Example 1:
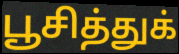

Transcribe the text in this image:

பூசித்துக்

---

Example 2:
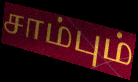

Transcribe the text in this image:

சாம்பும்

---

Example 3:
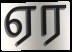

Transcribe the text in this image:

ஏர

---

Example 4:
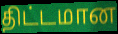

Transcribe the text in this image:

திட்டமான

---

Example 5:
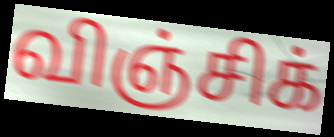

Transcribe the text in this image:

விஞ்சிக்